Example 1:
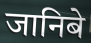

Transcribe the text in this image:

जानिबे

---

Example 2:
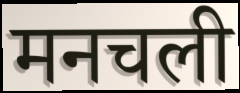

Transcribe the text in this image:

मनचली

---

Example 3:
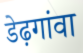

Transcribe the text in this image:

डेढ़गांवा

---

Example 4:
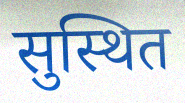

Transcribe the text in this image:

सुस्थित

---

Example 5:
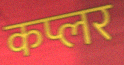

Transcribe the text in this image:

कप्लर